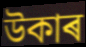
উকাৰ